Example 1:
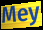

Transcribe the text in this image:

Mey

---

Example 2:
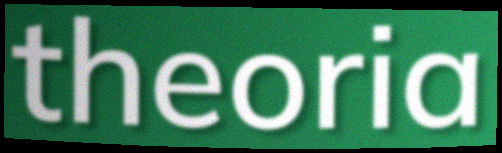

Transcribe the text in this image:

theoria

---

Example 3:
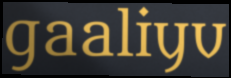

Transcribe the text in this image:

gaaliyu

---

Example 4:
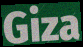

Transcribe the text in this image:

Giza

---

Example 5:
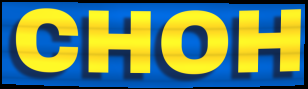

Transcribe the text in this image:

CHOH